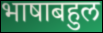
भाषाबहुल